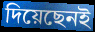
দিয়েছেনই